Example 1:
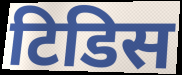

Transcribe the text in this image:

टिडिस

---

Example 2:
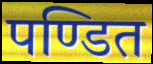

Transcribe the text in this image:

पण्डित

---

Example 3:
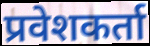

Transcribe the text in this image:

प्रवेशकर्ता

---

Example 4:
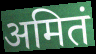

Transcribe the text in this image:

अमितं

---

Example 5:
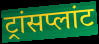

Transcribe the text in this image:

ट्रांसप्लांट